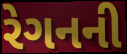
રેગનની